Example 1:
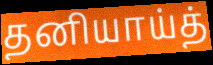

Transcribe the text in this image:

தனியாய்த்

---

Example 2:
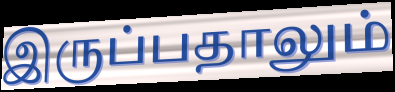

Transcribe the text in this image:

இருப்பதாலும்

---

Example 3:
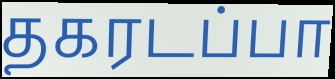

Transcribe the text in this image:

தகரடப்பா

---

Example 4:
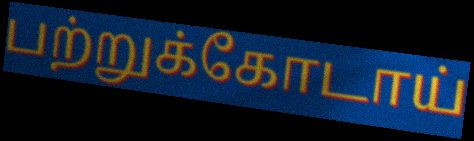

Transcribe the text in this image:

பற்றுக்கோடாய்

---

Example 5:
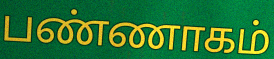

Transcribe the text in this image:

பண்ணாகம்